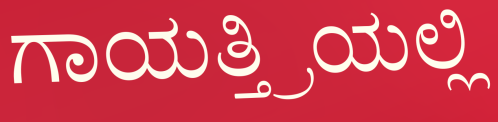
ಗಾಯತ್ತ್ರಿಯಲ್ಲಿ